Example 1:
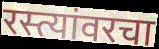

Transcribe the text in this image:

रस्त्यांवरचा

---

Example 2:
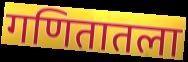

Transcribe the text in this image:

गणितातला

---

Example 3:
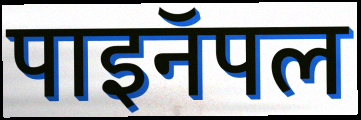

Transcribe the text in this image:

पाइनॅपल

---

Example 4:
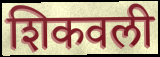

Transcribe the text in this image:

शिकवली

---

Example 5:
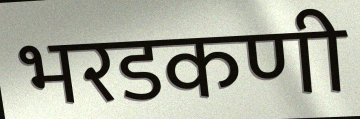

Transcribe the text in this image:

भरडकणी